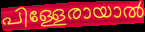
പിള്ളേരായാൽ